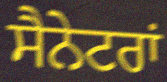
ਸੈਨੇਟਰਾਂ